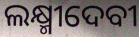
ଲକ୍ଷ୍ମୀଦେବୀ